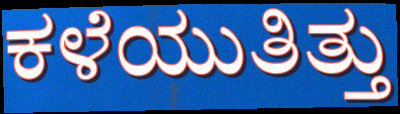
ಕಳೆಯುತಿತ್ತು